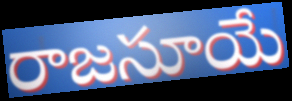
రాజసూయే